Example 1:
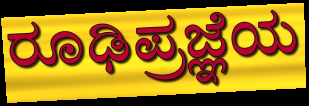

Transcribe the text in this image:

ರೂಢಿಪ್ರಜ್ಞೆಯ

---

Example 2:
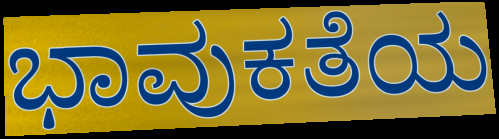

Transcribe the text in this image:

ಭಾವುಕತೆಯ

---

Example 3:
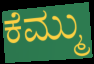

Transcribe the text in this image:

ಕೆಮ್ಮು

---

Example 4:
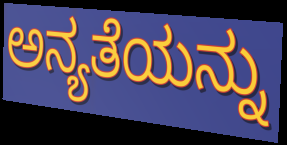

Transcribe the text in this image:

ಅನ್ಯತೆಯನ್ನು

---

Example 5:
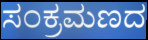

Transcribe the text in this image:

ಸಂಕ್ರಮಣದ